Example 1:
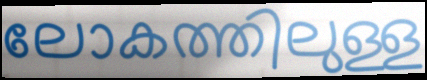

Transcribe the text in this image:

ലോകത്തിലുള്ള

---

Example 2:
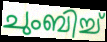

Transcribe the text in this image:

ചുംബിച്ച്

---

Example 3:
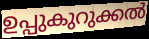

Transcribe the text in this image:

ഉപ്പുകുറുക്കൽ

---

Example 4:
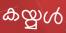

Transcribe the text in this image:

കയ്മൾ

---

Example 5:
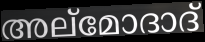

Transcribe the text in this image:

അല്മോദാദ്